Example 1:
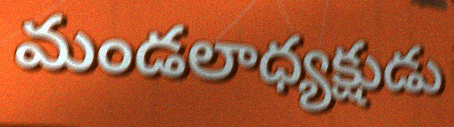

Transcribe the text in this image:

మండలాధ్యక్షుడు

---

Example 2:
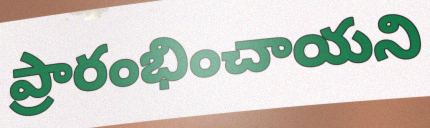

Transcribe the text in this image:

ప్రారంభించాయని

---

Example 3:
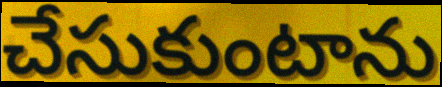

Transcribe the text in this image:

చేసుకుంటాను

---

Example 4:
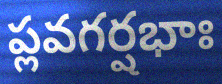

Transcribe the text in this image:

ప్లవగర్షభాః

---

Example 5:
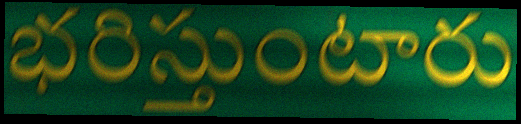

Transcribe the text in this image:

భరిస్తుంటారు